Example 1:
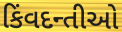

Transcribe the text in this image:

કિંવદન્તીઓ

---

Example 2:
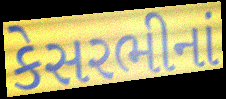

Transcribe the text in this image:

કેસરભીનાં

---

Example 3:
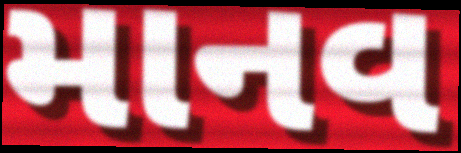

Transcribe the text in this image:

માનવ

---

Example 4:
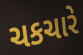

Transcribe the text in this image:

ચકચારે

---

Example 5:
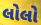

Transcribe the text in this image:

લોલો